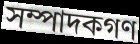
সম্পাদকগণ